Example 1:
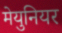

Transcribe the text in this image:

मेयुनियर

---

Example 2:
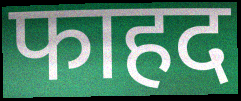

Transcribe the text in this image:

फाहद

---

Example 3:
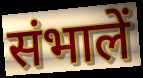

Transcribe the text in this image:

संभालें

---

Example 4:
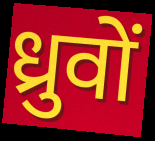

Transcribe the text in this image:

ध्रुवों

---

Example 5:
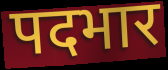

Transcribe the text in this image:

पदभार